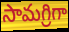
సామగ్రిగా